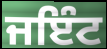
ਜਇੰਟ